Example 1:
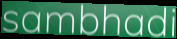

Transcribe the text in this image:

sambhadi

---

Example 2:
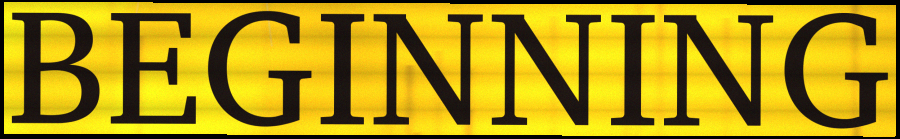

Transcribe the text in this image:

BEGINNING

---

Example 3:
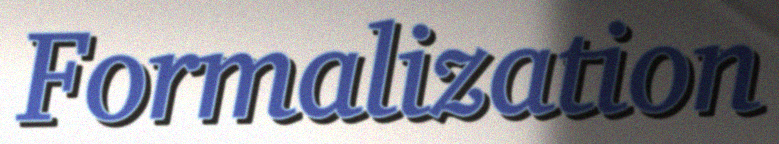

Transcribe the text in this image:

Formalization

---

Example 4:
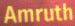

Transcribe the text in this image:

Amruth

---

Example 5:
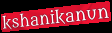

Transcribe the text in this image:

kshanikanun